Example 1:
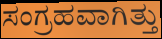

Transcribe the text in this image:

ಸಂಗ್ರಹವಾಗಿತ್ತು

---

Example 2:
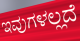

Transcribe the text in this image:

ಇವುಗಳಲ್ಲದೆ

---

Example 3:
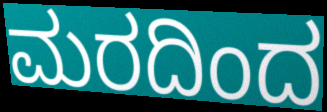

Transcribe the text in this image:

ಮರದಿಂದ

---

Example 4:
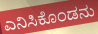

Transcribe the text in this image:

ಎನಿಸಿಕೊಂಡನು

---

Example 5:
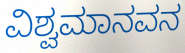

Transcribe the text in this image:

ವಿಶ್ವಮಾನವನ